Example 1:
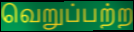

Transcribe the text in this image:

வெறுப்பற்ற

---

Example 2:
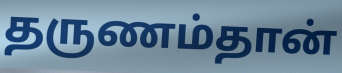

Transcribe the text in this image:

தருணம்தான்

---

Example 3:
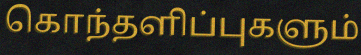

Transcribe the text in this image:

கொந்தளிப்புகளும்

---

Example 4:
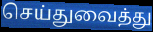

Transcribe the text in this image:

செய்துவைத்து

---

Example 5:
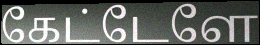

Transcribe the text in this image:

கேட்டேளே